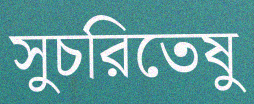
সুচরিতেষু